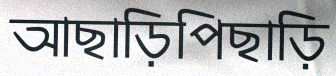
আছাড়িপিছাড়ি